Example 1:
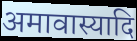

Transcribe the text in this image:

अमावास्यादि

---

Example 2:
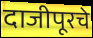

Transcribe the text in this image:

दाजीपूरचे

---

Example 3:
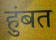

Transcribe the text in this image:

हुंबत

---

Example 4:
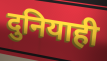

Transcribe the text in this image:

दुनियाही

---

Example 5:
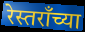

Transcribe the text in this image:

रेस्तराँच्या